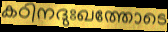
കഠിനദുഃഖത്തോടെ